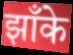
झाँके